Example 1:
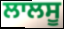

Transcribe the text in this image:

ਲਾਲਸੂ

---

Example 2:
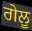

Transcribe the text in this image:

ਗੇਲੂ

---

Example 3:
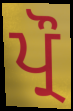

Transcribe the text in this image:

ਪ੍ਰੌ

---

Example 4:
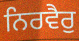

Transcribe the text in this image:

ਨਿਰਵੈਰੁ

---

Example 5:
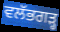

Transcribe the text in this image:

ਵਲੱਭਗੜ੍ਹ